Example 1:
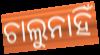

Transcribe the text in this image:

ଚାଲୁନାହିଁ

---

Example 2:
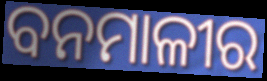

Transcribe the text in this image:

ବନମାଳୀର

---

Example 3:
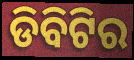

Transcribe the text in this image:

ଡିବିଟିର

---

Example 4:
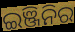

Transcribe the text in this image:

ଇଞ୍ଜିନିର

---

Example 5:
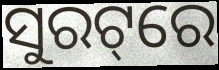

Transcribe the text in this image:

ସୁରଟ୍‌ରେ